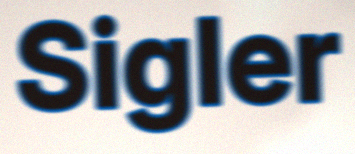
Sigler